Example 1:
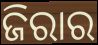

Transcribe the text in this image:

ଜିରାର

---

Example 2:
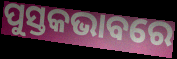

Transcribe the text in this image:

ପୁସ୍ତକଭାବରେ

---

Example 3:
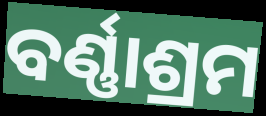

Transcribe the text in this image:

ବର୍ଣ୍ଣାଶ୍ରମ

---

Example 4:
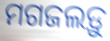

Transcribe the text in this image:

ମଗଜଲଡ଼ୁ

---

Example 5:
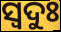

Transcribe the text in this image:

ସ୍ବଦୁଃ